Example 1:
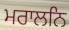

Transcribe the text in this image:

ਮਰਾਲਨਿ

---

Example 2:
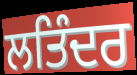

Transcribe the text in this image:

ਲਤਿੰਦਰ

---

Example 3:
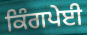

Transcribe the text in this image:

ਕਿੰਗਪੇਈ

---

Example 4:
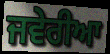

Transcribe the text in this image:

ਜਵੇਰੀਆ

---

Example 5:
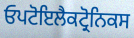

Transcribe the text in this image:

ਓਪਟੋਇਲੈਕਟ੍ਰੋਨਿਕਸ